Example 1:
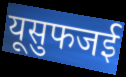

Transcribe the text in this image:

यूसुफजई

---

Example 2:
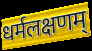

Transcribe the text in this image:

धर्मलक्षणम्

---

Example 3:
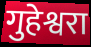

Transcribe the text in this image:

गुहेश्वरा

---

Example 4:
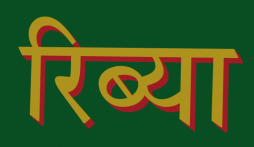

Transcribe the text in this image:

रिब्या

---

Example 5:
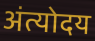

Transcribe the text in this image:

अंत्योदय